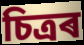
চিত্ৰৰ